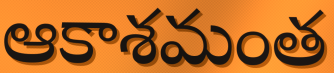
ఆకాశమంత